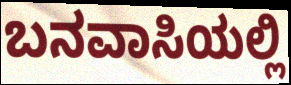
ಬನವಾಸಿಯಲ್ಲಿ